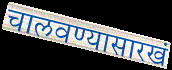
चालवण्यासारखं